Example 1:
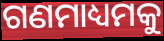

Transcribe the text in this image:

ଗଣମାଧ୍ୟମକୁ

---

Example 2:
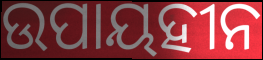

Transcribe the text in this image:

ଉପାୟହୀନ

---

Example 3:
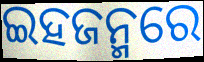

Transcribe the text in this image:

ଇହଜନ୍ମରେ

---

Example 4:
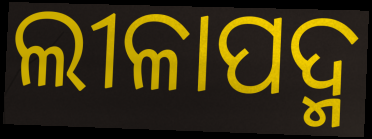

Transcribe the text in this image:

ଲୀଳାପଦ୍ମ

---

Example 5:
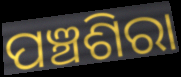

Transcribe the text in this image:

ପଞ୍ଚଶିରା